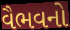
વૈભવનો